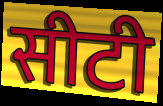
सीटी